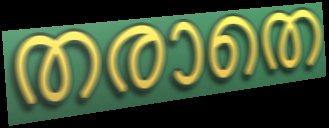
തരാതെ